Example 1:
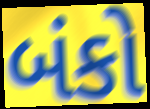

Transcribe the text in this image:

બંકો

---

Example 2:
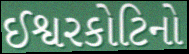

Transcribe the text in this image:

ઈશ્વરકોટિનો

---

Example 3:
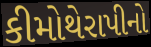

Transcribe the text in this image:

કીમોથેરાપીનો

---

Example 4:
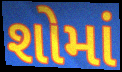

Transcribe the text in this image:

શોમાં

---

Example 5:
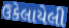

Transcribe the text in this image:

ઉકેલાયેલી